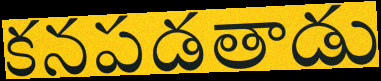
కనపడతాడు